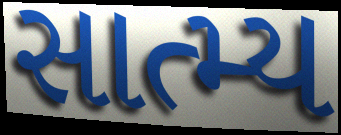
સાત્મ્ય